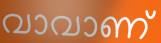
വാവാണ്